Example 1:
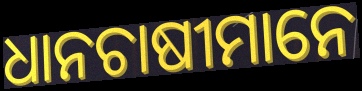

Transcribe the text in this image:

ଧାନଚାଷୀମାନେ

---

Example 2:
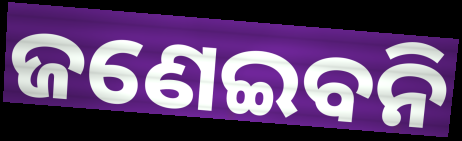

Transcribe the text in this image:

ଜଣେଇବନି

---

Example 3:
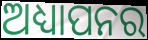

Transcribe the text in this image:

ଅଧ୍ୟାପନର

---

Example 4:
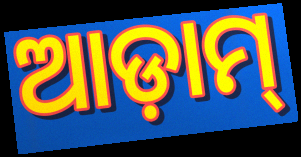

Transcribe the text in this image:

ଆଡ଼ାମ୍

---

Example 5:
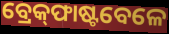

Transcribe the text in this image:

ବ୍ରେକ୍‌ଫାଷ୍ଟବେଳେ